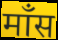
मॉंस